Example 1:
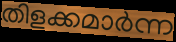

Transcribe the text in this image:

തിളക്കമാർന്ന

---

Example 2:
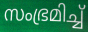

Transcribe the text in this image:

സംഭ്രമിച്ച്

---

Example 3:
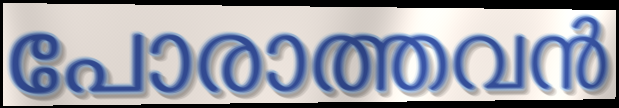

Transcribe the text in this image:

പോരാത്തവൻ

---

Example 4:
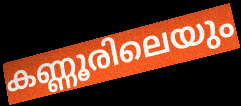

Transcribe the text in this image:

കണ്ണൂരിലെയും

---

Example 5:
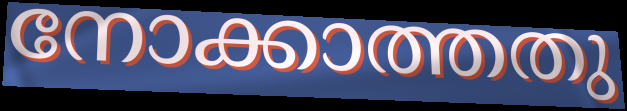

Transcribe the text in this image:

നോക്കാത്തതു